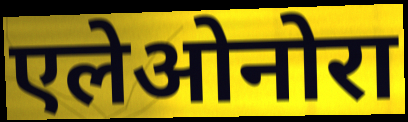
एलेओनोरा